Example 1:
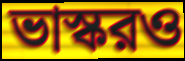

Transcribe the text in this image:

ভাস্করও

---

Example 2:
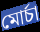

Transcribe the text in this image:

মোর্চা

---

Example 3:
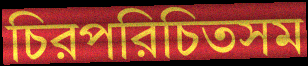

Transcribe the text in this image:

চিরপরিচিতসম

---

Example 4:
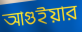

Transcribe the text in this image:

আগুইয়ার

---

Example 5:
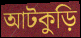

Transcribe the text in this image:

আটকুড়ি